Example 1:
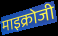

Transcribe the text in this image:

माइक्रोजी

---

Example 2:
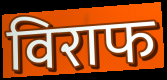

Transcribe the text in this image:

विराफ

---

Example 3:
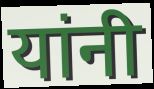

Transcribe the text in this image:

यांनी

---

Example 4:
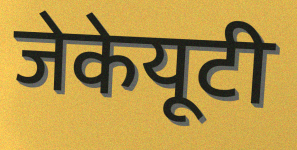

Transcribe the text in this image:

जेकेयूटी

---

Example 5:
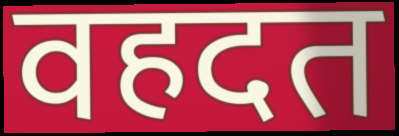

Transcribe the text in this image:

वहदत